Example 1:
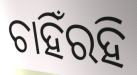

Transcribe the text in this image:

ଚାହିଁରହି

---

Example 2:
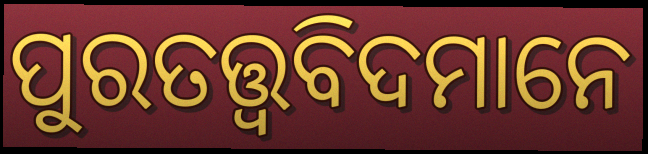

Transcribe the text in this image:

ପୁରତତ୍ତ୍ୱବିଦମାନେ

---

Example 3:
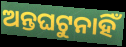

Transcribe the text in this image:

ଅନ୍ତଘଟୁନାହିଁ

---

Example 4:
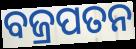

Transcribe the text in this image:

ବଜ୍ରପତନ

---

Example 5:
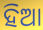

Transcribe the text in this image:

ହିଆ